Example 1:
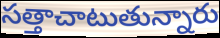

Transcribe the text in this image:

సత్తాచాటుతున్నారు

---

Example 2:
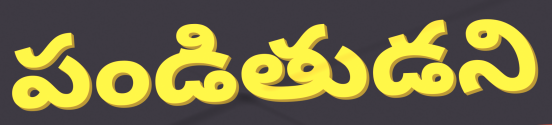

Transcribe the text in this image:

పండితుడని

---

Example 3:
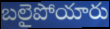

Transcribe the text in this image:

బలైపోయారు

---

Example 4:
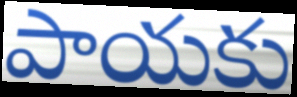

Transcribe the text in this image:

పాయకు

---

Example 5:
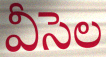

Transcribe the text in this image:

వీసెల